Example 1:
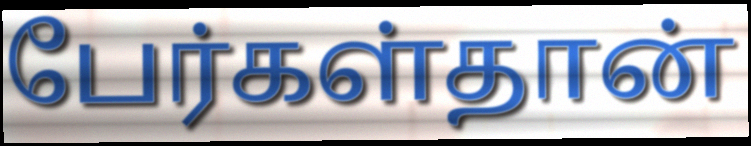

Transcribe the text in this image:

பேர்கள்தான்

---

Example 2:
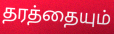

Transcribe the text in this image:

தரத்தையும்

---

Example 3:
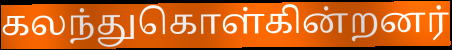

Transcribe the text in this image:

கலந்துகொள்கின்றனர்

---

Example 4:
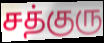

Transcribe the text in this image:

சத்குரு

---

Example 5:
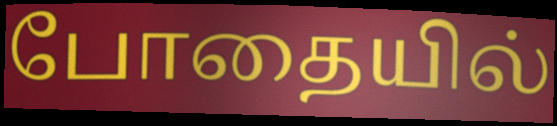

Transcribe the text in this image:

போதையில்